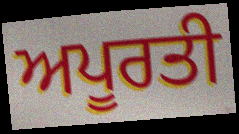
ਅਪੂਰਤੀ